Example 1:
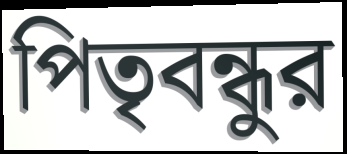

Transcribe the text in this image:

পিতৃবন্ধুর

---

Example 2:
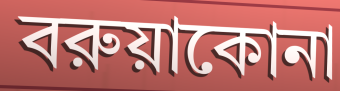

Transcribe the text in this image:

বরুয়াকোনা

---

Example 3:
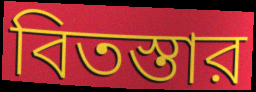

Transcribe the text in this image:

বিতস্তার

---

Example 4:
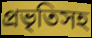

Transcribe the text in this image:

প্রভৃতিসহ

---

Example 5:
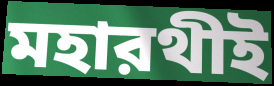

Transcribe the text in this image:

মহারথীই